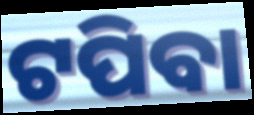
ଟପିବା